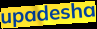
upadesha